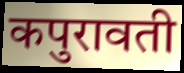
कपुरावती